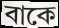
বাকে